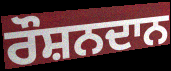
ਰੌਸ਼ਨਦਾਨ